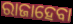
ରାଜାହେବା